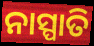
ନାସ୍ପାତି